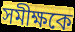
সমীক্ষকে